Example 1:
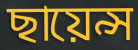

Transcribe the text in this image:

ছায়েন্স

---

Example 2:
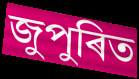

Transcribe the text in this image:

জুপুৰিত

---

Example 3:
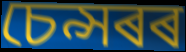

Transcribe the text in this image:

চেন্সৰৰ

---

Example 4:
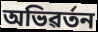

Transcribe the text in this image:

অভিৱৰ্তন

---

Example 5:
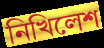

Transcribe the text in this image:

নিখিলেশ